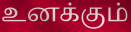
உனக்கும்